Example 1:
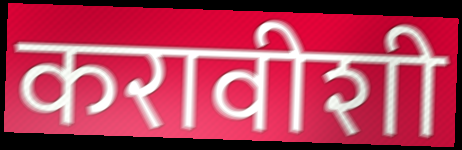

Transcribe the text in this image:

करावीशी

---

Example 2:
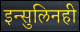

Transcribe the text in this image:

इन्सुलिनही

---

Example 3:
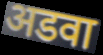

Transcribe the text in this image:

अडवा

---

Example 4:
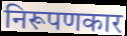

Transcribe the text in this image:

निरूपणकार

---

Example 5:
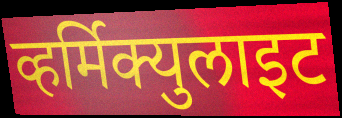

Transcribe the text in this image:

व्हर्मिक्युलाइट